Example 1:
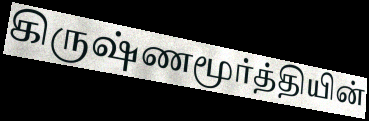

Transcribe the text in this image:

கிருஷ்ணமூர்த்தியின்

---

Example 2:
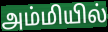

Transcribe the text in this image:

அம்மியில்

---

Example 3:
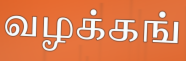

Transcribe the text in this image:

வழக்கங்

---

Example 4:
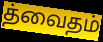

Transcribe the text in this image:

த்வைதம்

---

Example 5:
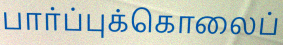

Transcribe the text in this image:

பார்ப்புக்கொலைப்